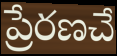
ప్రేరణచే